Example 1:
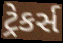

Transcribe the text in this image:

ટ્રેકર્સ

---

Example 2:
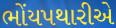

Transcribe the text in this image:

ભોંયપથારીએ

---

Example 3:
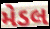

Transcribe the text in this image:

મેડલ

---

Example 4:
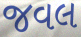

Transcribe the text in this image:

જવલ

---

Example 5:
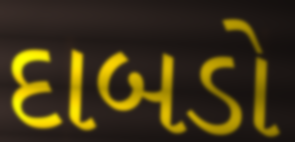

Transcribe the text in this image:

દાબડો